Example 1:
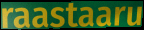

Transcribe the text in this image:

raastaaru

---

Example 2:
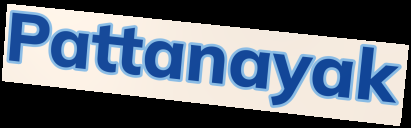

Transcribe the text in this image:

Pattanayak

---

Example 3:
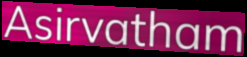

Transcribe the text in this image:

Asirvatham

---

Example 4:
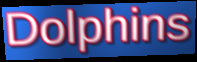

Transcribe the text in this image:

Dolphins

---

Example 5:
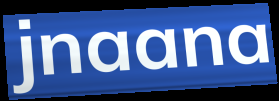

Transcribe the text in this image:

jnaana